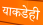
याकडेही